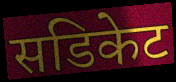
सडिकेट